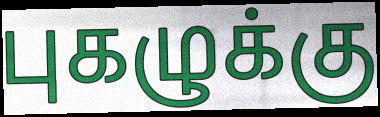
புகழுக்கு